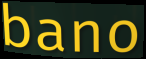
bano